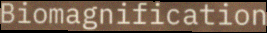
Biomagnification